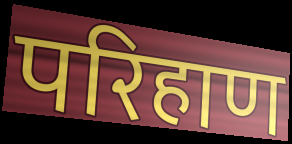
परिहाण